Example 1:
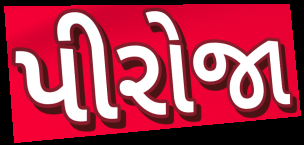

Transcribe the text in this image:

પીરોજા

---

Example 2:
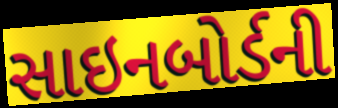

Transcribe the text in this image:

સાઇનબોર્ડની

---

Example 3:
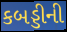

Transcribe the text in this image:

કબડ્ડીની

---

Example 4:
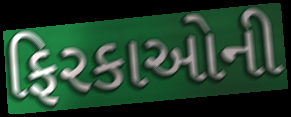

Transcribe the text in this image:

ફિરકાઓની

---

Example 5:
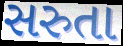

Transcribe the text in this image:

સરુતા